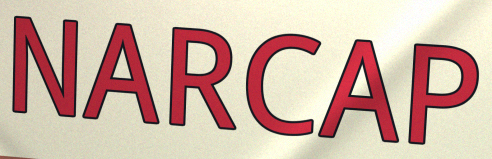
NARCAP